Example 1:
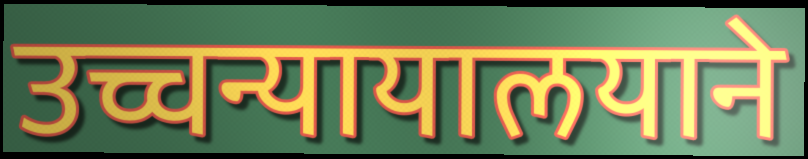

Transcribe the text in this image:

उच्चन्यायालयाने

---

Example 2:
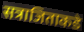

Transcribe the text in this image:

सत्राजिताकडे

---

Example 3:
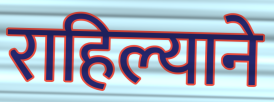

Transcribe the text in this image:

राहिल्याने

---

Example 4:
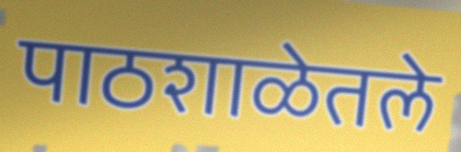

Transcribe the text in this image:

पाठशाळेतले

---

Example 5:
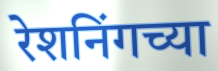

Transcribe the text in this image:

रेशनिंगच्या